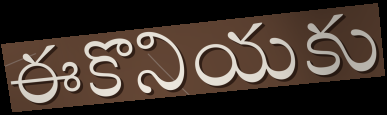
ఈకొనియకు